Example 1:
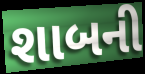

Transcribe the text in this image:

શાબની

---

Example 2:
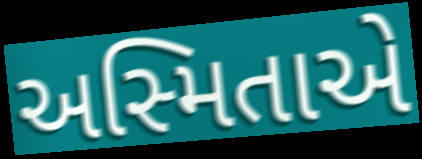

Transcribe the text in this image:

અસ્મિતાએ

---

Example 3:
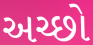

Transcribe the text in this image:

અચ્છો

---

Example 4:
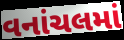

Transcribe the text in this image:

વનાંચલમાં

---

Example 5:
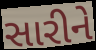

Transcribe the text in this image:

સારીને